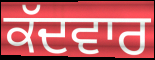
ਕੱਦਵਾਰ